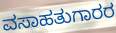
ವಸಾಹತುಗಾರರ